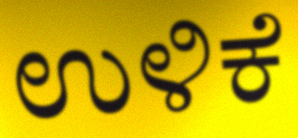
ಉಳಿಕೆ